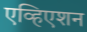
एव्हिएशन